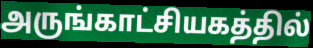
அருங்காட்சியகத்தில்